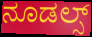
ನೂಡಲ್ಸ್